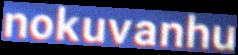
nokuvanhu